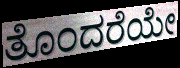
ತೊಂದರೆಯೇ